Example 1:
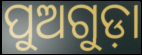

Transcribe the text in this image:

ପୁଅଗୁଡ଼ା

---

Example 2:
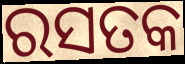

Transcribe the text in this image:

ରସତକ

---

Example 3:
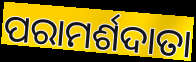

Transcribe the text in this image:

ପରାମର୍ଶଦାତା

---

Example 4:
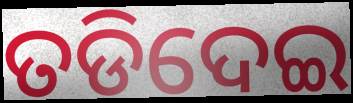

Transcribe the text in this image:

ତଡିଦେଇ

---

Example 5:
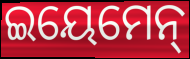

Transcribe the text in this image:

ଇୟେମେନ୍